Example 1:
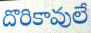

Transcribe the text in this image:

దొరికావులే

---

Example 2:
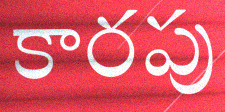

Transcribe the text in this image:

కారపు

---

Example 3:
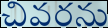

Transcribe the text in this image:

చివరను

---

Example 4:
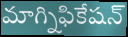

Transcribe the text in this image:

మాగ్నిఫికేషన్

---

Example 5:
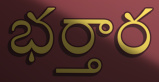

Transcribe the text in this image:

భర్తార